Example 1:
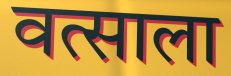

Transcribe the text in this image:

वत्साला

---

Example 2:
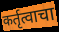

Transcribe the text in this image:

कर्तृत्वाचा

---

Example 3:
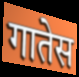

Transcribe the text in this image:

गातेस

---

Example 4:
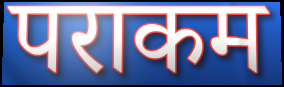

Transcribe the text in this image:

पराकम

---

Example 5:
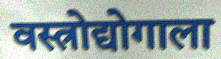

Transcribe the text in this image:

वस्त्रोद्योगाला